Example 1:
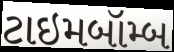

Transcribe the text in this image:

ટાઇમબૉમ્બ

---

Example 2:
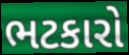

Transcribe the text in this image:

ભટકારો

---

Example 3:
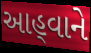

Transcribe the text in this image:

આહ્‌વાને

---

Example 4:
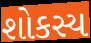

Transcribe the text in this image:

શોકસ્ય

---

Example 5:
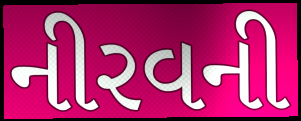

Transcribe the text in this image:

નીરવની